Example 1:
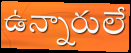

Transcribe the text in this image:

ఉన్నారులే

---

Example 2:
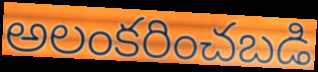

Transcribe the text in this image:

అలంకరించబడి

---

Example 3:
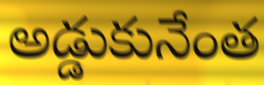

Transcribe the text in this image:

అడ్డుకునేంత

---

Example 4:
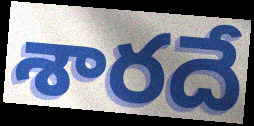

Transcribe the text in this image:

శారదే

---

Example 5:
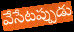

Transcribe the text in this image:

వేసేటప్పుడు